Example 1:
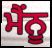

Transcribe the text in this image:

ਮੈਂਨੂ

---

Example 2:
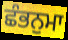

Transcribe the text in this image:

ਛੰਭਨੁਮਾ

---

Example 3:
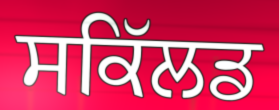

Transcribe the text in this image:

ਸਕਿੱਲਡ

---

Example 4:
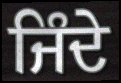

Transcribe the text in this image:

ਜਿੰਦੇ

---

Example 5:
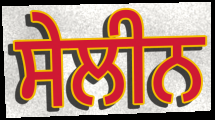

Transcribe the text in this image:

ਸੇਲੀਨ